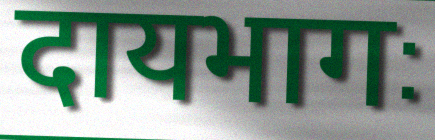
दायभागः